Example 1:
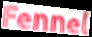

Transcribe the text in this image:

Fennel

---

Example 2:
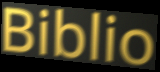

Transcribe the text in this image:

Biblio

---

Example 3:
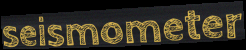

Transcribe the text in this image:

seismometer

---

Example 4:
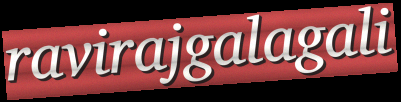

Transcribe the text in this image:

ravirajgalagali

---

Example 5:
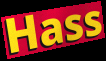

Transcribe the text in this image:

Hass